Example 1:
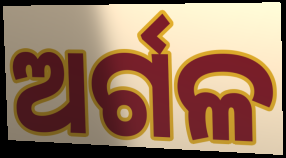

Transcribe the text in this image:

ଅର୍ଗଳ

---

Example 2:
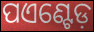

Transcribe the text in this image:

ପଏଣ୍ଟେଡ଼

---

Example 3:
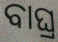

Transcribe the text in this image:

ବାଘ୍ର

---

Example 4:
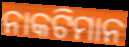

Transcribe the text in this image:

ନାକଟିମାନ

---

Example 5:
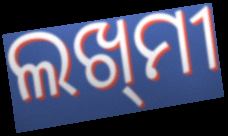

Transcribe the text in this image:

ଲଖ୍‌ମୀ